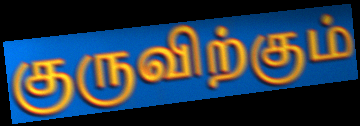
குருவிற்கும்